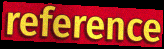
reference